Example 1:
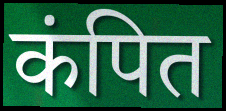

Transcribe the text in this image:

कंपित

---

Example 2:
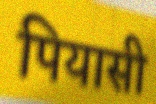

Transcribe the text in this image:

पियासी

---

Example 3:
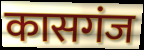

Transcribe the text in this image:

कासगंज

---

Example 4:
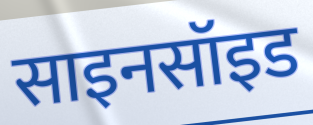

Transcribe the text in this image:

साइनसॉइड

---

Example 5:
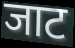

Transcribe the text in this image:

जाट